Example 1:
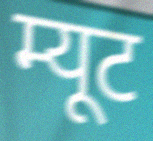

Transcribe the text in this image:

म्यूट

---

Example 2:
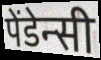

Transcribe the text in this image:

पेंडेन्सी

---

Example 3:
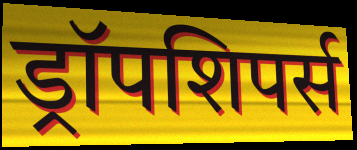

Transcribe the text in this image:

ड्रॉपशिपर्स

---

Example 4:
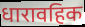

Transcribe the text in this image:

धारावहिक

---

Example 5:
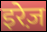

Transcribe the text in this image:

इरेज़